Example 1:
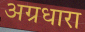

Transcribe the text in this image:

अग्रधारा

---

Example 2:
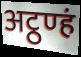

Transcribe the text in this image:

अट्ठण्हं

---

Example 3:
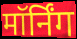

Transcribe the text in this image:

मॉर्निंग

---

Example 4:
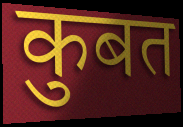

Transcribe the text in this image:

कुबत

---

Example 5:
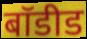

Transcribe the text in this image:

बॉडीड